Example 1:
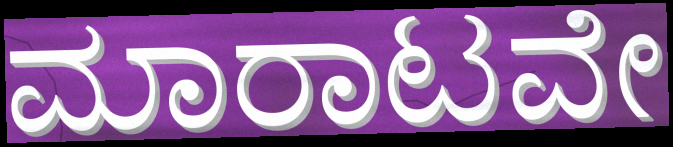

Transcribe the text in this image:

ಮಾರಾಟವೇ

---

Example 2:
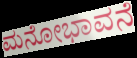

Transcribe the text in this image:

ಮನೋಭಾವನೆ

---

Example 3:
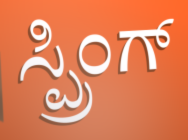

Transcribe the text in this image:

ಸ್ಪ್ರಿಂಗ್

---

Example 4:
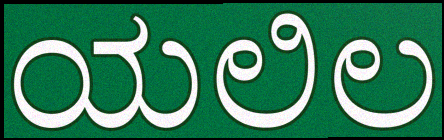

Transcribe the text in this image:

ಯಲಿಲ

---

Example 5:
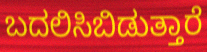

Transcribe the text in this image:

ಬದಲಿಸಿಬಿಡುತ್ತಾರೆ